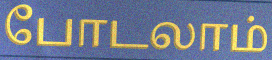
போடலாம்